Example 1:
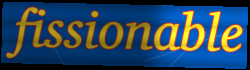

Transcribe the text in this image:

fissionable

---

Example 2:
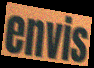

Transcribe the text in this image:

envis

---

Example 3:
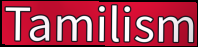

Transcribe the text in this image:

Tamilism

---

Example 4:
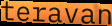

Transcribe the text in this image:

teravan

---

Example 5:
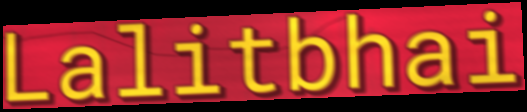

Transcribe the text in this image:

Lalitbhai